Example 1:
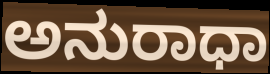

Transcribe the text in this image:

ಅನುರಾಧಾ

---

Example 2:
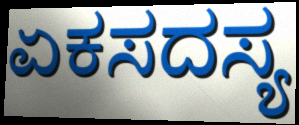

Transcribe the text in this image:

ಏಕಸದಸ್ಯ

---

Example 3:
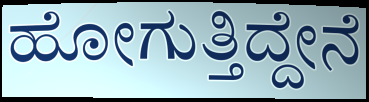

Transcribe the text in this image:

ಹೋಗುತ್ತಿದ್ದೇನೆ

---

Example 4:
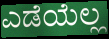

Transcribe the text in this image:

ಎಡೆಯೆಲ್ಲ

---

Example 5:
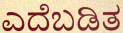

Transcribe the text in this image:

ಎದೆಬಡಿತ